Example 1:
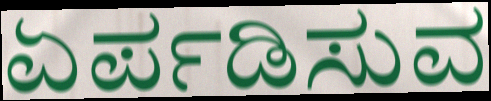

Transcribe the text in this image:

ಏರ್ಪಡಿಸುವ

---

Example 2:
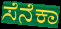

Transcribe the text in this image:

ಸೆನೆಕಾ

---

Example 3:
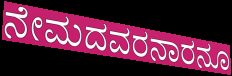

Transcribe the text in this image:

ನೇಮದವರನಾರನೂ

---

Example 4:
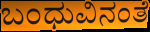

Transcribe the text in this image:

ಬಂಧುವಿನಂತೆ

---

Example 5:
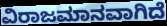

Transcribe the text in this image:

ವಿರಾಜಮಾನವಾಗಿದೆ